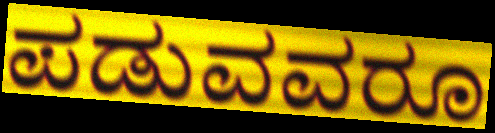
ಪಡುವವರೂ